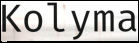
Kolyma